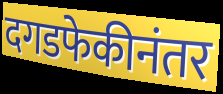
दगडफेकीनंतर